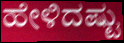
ಹೇಳಿದಷ್ಟು